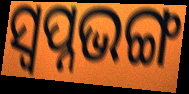
ସ୍ୱପ୍ନଭଙ୍ଗ